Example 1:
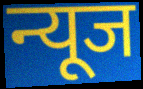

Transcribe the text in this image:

न्‍यूज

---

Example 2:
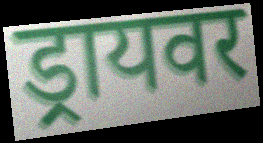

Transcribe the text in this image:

ड्रायवर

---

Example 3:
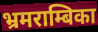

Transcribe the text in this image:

भ्रमराम्बिका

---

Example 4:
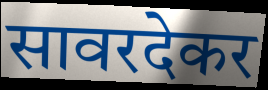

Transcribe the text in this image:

सावरदेकर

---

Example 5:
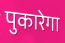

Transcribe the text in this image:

पुकारेगा